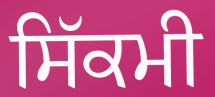
ਸਿੱਕਮੀ